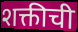
शक्तीची